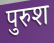
पुरुश